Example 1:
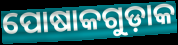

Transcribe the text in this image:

ପୋଷାକଗୁଡ଼ାକ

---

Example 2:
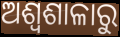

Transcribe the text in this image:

ଅଶ୍ୱଶାଳାରୁ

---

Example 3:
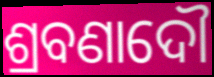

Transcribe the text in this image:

ଶ୍ରବଣାଦୌ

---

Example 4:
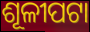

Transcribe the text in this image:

ଶୂଳୀପଟା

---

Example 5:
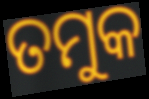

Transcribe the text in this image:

ତମୁକ